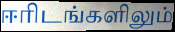
ஈரிடங்களிலும்